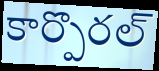
కార్పొరల్